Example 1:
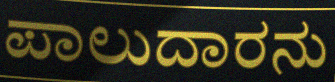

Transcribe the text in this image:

ಪಾಲುದಾರನು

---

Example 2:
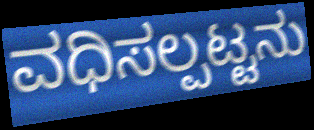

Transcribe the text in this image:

ವಧಿಸಲ್ಪಟ್ಟನು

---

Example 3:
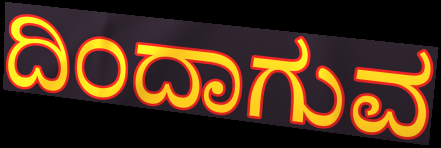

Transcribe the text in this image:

ದಿಂದಾಗುವ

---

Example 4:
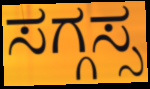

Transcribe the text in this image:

ಸಗ್ಗಸ್ಸ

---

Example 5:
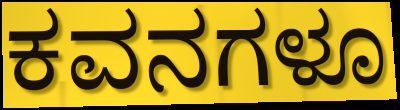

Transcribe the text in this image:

ಕವನಗಳೂ